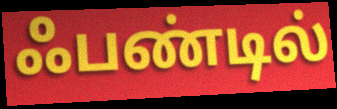
ஃபண்டில்